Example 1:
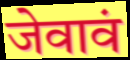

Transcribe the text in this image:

जेवावं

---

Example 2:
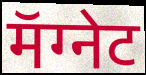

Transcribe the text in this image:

मॅग्नेट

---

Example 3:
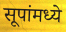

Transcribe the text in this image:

सूपांमध्ये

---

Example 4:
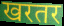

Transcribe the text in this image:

खरतर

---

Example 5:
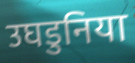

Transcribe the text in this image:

उघडुनिया